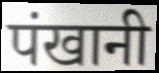
पंखानी